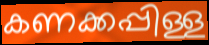
കണക്കപ്പിള്ള